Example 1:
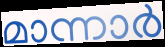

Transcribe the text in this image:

മാന്നാർ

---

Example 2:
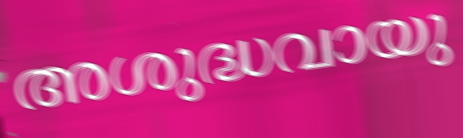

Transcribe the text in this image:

അശുദ്ധവായു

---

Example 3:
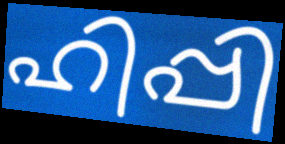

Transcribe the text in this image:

ഹിപ്പി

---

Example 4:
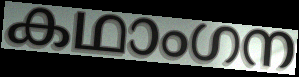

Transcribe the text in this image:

കഥാംഗന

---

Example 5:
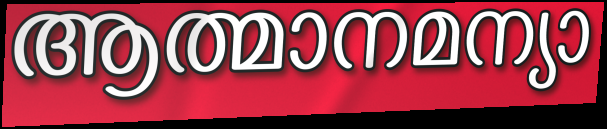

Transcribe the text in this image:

ആത്മാനമന്യാ